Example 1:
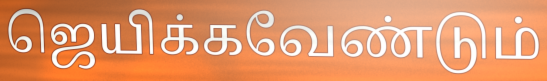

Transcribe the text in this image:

ஜெயிக்கவேண்டும்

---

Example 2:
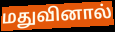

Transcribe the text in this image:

மதுவினால்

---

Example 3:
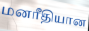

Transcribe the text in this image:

மனரீதியான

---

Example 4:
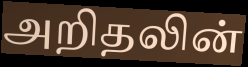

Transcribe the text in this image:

அறிதலின்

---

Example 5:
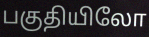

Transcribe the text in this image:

பகுதியிலோ